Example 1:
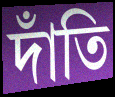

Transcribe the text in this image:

দাঁতি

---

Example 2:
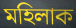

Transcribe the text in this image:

মহিলাক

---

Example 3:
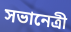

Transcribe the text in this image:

সভানেত্ৰী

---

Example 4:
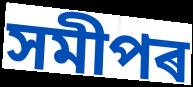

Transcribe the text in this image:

সমীপৰ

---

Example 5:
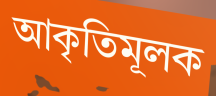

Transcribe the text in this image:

আকৃতিমূলক